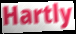
Hartly